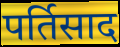
पर्तिसाद